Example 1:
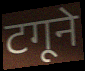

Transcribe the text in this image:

टगूने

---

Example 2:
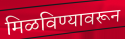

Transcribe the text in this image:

मिळविण्यावरून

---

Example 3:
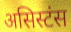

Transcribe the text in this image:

असिस्टंस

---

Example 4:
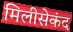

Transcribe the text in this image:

मिलीसेकंद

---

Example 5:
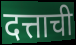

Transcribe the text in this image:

दत्ताची